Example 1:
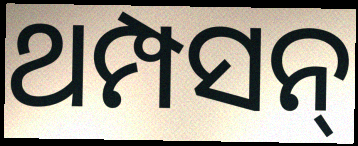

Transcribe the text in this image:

ଥମ୍ପସନ୍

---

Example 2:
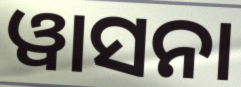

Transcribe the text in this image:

ୱାସନା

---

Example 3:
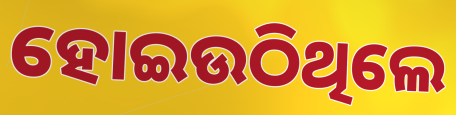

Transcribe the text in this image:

ହୋଇଉଠିଥିଲେ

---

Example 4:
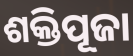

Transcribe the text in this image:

ଶକ୍ତିପୂଜା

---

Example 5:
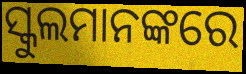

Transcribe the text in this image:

ସ୍କୁଲମାନଙ୍କରେ